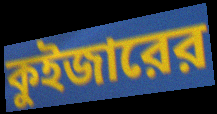
কুইজারের